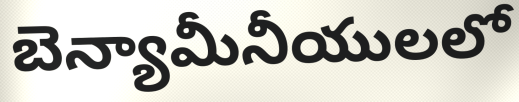
బెన్యామీనీయులలో